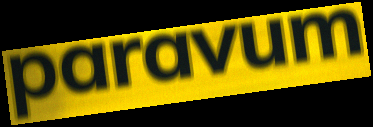
paravum